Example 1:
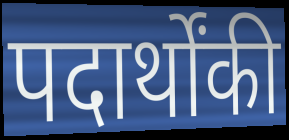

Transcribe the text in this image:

पदार्थोंकी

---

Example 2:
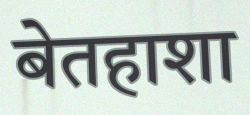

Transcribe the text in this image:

बेतहाशा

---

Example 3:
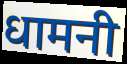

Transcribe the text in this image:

धामनी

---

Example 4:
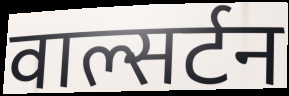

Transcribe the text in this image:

वाल्सर्टन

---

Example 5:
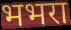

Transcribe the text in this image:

भभरा